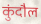
कुंदौल